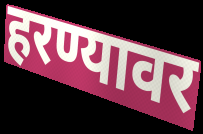
हरण्यावर